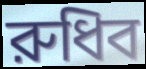
রুধিব